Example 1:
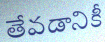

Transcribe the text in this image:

తేవడానికీ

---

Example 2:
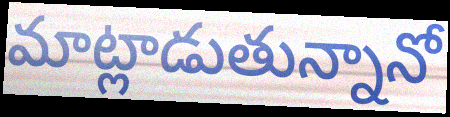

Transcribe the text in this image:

మాట్లాడుతున్నానో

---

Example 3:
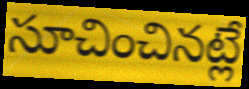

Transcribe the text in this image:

సూచించినట్లే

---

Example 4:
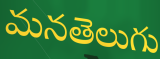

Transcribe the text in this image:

మనతెలుగు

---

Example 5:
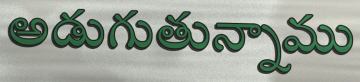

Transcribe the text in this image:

అడుగుతున్నాము